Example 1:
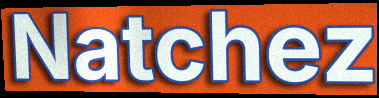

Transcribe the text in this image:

Natchez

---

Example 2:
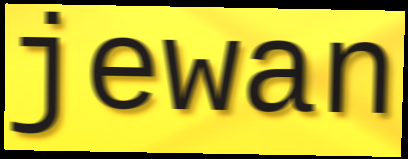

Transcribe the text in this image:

jewan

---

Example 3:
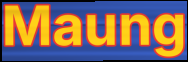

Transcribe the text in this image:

Maung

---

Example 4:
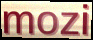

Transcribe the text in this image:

mozi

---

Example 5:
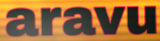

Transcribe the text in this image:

aravu